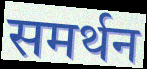
समर्थन